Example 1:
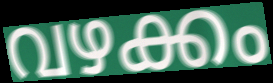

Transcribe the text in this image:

വഴക്കം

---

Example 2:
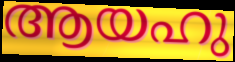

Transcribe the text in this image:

ആയഹു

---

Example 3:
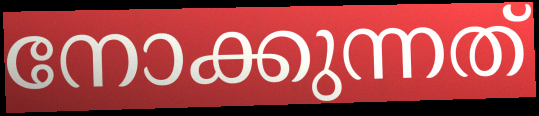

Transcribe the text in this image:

നോക്കുന്നത്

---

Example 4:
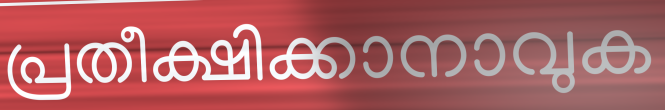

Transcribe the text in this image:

പ്രതീക്ഷിക്കാനാവുക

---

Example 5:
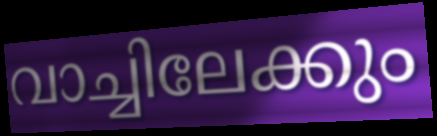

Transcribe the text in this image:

വാച്ചിലേക്കും